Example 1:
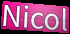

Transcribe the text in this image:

Nicol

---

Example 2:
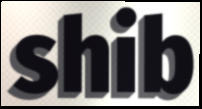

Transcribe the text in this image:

shib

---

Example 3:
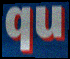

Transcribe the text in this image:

qu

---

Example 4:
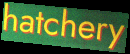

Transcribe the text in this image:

hatchery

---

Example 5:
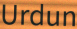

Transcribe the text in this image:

Urdun